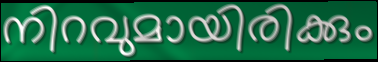
നിറവുമായിരിക്കും